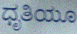
ಧೃತಿಯೂ